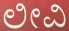
ಲೀವಿ